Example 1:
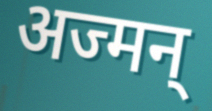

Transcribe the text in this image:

अज्मन्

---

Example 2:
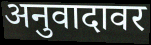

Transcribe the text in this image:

अनुवादावर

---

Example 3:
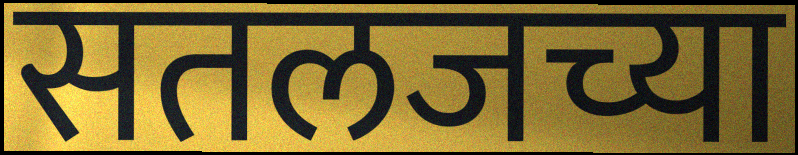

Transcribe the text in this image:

सतलजच्या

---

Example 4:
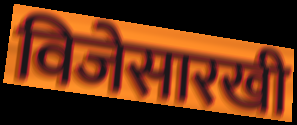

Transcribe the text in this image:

विजेसारखी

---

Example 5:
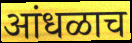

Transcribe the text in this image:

आंधळाच